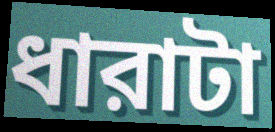
ধারাটা